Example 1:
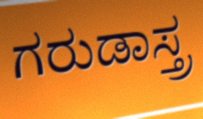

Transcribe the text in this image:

ಗರುಡಾಸ್ತ್ರ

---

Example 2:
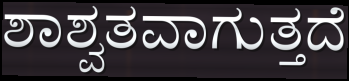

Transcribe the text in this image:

ಶಾಶ್ವತವಾಗುತ್ತದೆ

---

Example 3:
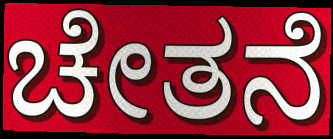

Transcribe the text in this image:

ಚೇತನೆ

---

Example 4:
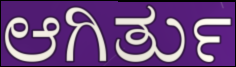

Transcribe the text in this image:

ಆಗಿರ್ತು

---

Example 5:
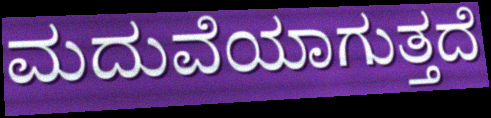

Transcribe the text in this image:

ಮದುವೆಯಾಗುತ್ತದೆ